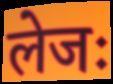
लेजः